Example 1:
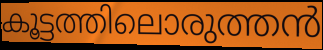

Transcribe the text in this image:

കൂട്ടത്തിലൊരുത്തൻ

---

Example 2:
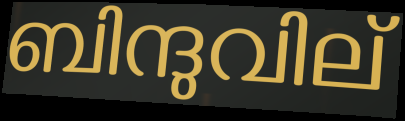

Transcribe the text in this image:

ബിന്ദുവില്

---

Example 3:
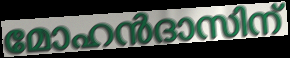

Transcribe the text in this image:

മോഹൻദാസിന്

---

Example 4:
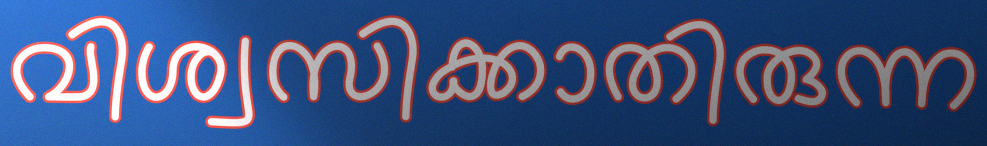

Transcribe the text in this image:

വിശ്വസിക്കാതിരുന്ന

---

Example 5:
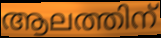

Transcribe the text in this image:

ആലത്തിന്